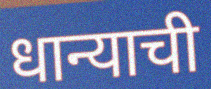
धान्याची